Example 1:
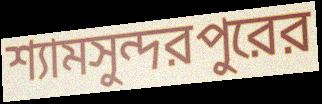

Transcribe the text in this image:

শ্যামসুন্দরপুরের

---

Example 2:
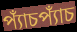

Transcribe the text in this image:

প্যাঁচপ্যাঁচ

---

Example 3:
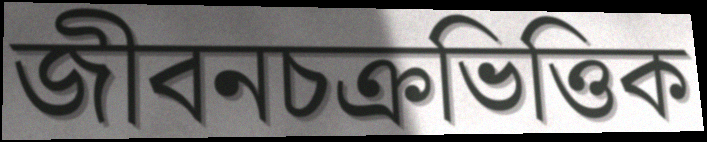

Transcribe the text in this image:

জীবনচক্রভিত্তিক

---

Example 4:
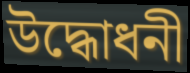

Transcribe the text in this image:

উদ্ধোধনী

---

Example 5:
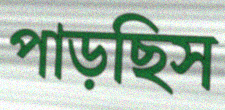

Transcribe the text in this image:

পাড়ছিস